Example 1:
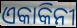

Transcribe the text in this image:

ଏକାକିନୀ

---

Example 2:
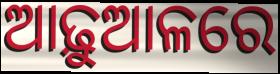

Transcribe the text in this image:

ଆଢ଼ୁଆଳରେ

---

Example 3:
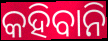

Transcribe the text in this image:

କହିବାନି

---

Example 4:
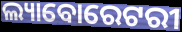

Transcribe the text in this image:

ଲ୍ୟାବୋରେଟରୀ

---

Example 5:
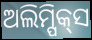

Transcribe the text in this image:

ଅଲିମ୍ପିକ୍‌ସ